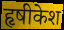
हृषीकेश